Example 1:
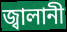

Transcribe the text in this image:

জ্বালানী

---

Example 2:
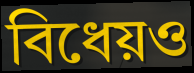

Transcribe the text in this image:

বিধেয়ও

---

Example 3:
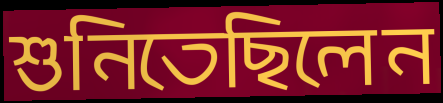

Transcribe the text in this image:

শুনিতেছিলেন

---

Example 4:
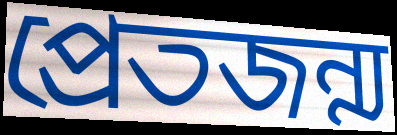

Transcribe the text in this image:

প্রেতজন্ম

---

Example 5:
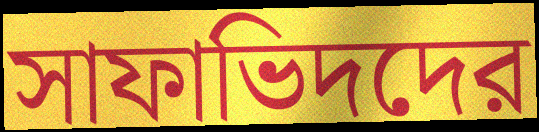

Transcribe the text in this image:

সাফাভিদদের